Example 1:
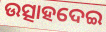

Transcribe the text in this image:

ଉତ୍ସାହଦେଇ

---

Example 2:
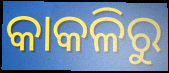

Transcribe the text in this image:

କାକଳିରୁ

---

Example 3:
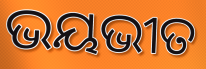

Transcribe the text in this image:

ଭୟଭୀତ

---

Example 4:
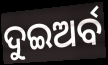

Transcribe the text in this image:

ଦୁଇଅର୍ବ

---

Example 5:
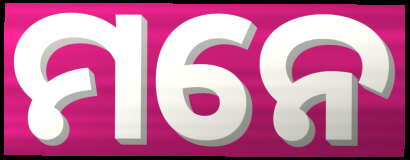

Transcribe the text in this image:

ମନେ